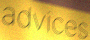
advices